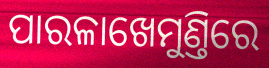
ପାରଳାଖେମୁଣ୍ତିରେ